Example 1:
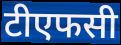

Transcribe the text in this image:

टीएफसी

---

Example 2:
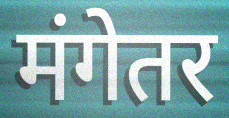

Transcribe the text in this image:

मंगेतर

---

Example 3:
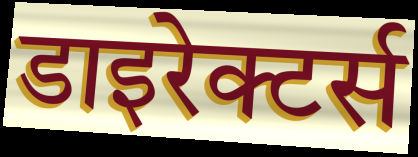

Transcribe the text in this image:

डाइरेक्टर्स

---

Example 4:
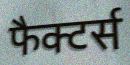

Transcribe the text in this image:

फैक्टर्स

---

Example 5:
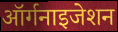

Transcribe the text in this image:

ऑर्गनाइजेशन